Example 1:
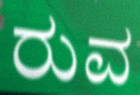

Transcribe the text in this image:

ರುವ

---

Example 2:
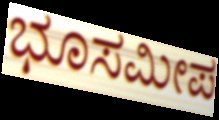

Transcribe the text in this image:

ಭೂಸಮೀಪ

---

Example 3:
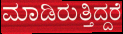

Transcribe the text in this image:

ಮಾಡಿರುತ್ತಿದ್ದರೆ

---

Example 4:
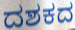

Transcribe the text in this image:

ದಶಕದ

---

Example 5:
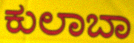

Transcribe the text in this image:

ಕುಲಾಬಾ